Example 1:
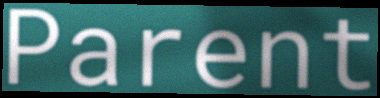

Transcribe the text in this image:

Parent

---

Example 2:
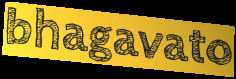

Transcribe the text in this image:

bhagavato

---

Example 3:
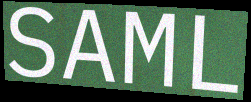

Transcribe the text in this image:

SAML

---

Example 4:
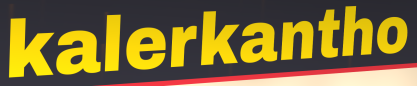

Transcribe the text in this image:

kalerkantho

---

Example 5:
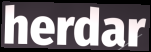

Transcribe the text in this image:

herdar